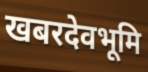
खबरदेवभूमि